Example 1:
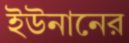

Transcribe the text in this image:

ইউনানের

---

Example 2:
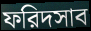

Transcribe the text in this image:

ফরিদসাব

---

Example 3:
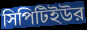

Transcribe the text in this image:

সিপিটিইউর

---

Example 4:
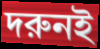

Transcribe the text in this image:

দরুনই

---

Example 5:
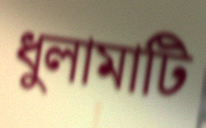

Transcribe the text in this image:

ধুলামাটি